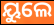
ୟୁଲେ